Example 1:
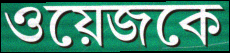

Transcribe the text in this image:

ওয়েজকে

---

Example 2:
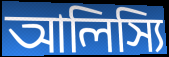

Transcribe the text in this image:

আলিস্যি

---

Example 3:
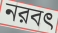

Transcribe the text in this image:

নরবৎ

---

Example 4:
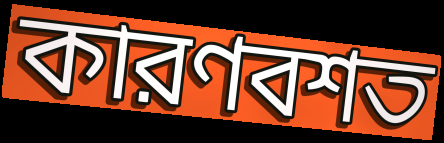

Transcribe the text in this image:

কারণবশত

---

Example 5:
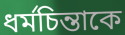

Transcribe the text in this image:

ধর্মচিন্তাকে